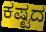
ಕಷ್ಟದ